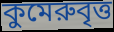
কুমেরুবৃত্ত